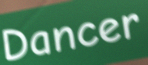
Dancer